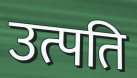
उत्पति